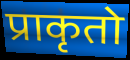
प्राकृतो